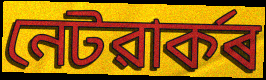
নেটৱাৰ্কৰ